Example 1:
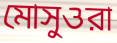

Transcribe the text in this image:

মোসুওরা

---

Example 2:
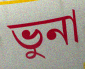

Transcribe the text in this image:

ভুনা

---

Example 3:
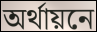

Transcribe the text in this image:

অর্থায়নে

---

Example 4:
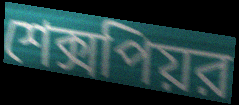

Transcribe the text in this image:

শেক্সপিয়র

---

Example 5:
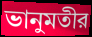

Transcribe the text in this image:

ভানুমতীর